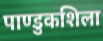
पाण्डुकशिला